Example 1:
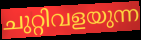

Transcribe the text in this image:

ചുറ്റിവളയുന്ന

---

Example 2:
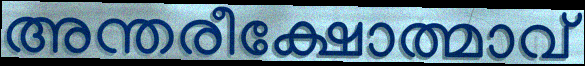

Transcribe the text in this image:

അന്തരീക്ഷോത്മാവ്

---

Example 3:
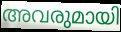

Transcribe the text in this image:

അവരുമായി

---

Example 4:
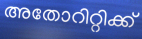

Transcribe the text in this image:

അതോറിറ്റിക്ക്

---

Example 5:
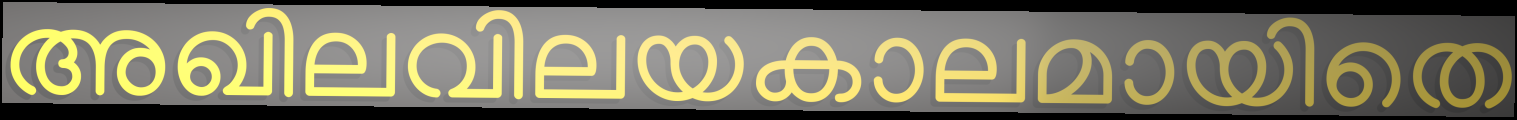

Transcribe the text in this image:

അഖിലവിലയകാലമായിതെ